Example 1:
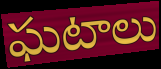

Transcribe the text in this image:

ఘటాలు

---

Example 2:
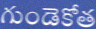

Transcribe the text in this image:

గుండెకోత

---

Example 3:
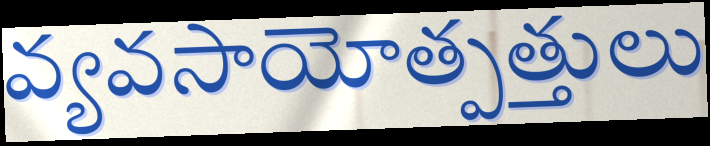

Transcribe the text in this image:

వ్యవసాయోత్పత్తులు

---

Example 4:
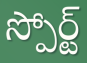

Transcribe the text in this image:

స్పోర్ట్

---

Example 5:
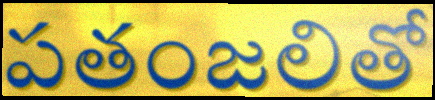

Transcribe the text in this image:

పతంజలితో